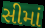
સીમાં